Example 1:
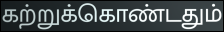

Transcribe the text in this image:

கற்றுக்கொண்டதும்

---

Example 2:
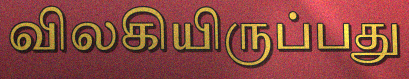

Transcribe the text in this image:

விலகியிருப்பது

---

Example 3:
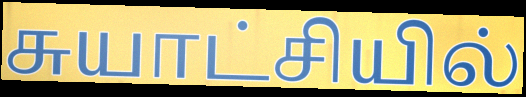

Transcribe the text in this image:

சுயாட்சியில்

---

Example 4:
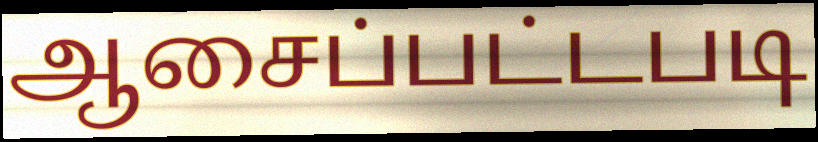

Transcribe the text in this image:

ஆசைப்பட்டபடி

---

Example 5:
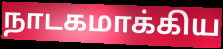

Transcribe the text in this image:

நாடகமாக்கிய